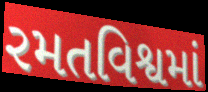
રમતવિશ્વમાં